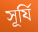
সূর্যি